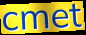
cmet